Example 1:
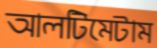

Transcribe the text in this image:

আলটিমেটাম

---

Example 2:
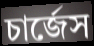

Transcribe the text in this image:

চার্জেস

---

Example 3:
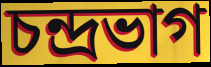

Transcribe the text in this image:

চন্দ্রভাগ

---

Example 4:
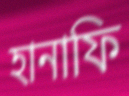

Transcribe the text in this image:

হানাফি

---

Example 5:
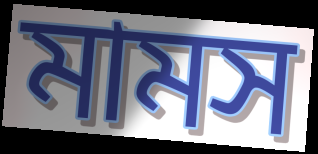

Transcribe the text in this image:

মামস